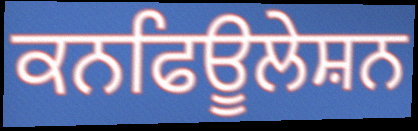
ਕਨਫਿਊਲੇਸ਼ਨ